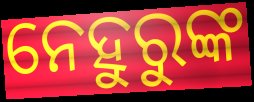
ନେହୁରୁଙ୍କ